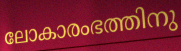
ലോകാരംഭത്തിനു